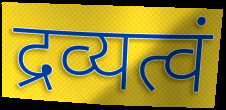
द्रव्यत्वं